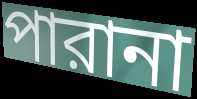
পারানা